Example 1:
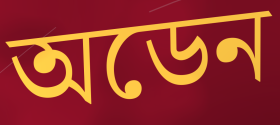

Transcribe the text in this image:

অডেন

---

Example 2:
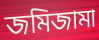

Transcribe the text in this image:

জমিজামা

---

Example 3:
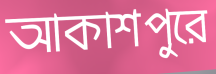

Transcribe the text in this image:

আকাশপুরে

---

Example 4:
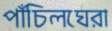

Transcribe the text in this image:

পাঁচিলঘেরা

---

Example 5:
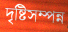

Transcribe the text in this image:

দৃষ্টিসম্পন্ন